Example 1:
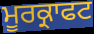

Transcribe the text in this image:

ਮੂਰਕ੍ਰਾਫਟ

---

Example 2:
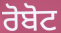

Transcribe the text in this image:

ਰੋਬੋਟ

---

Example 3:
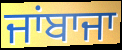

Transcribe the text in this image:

ਜਾਂਬਾਜਾ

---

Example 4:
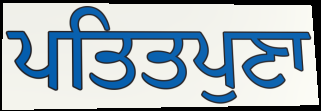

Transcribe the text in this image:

ਪਤਿਤਪੁਣਾ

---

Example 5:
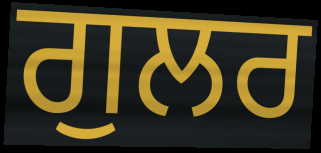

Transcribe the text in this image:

ਗੁਲਰ